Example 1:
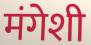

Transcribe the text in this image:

मंगेशी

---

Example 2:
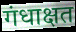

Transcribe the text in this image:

गंधाक्षत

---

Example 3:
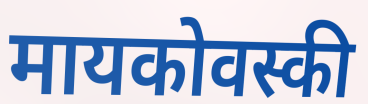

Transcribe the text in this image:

मायकोवस्की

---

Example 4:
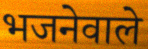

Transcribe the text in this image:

भजनेवाले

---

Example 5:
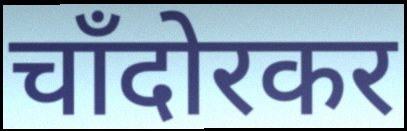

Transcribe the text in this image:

चाँदोरकर